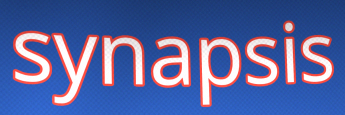
synapsis